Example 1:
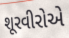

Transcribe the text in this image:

શૂરવીરોએ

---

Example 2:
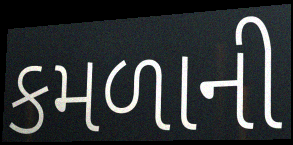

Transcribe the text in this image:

કમળાની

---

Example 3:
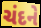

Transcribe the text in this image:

ચંદને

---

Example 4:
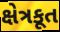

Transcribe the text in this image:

ક્ષેત્રકૂત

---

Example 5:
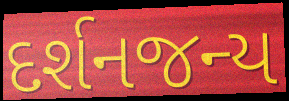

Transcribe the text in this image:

દર્શનજન્ય